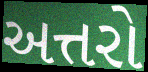
અત્તરો